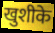
खुशीके